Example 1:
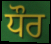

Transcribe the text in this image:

ਧੌਰ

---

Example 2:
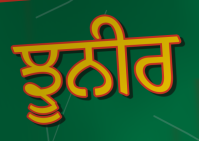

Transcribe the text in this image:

ਝੂਨੀਰ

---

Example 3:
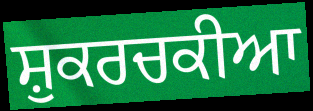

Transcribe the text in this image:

ਸ਼ੁਕਰਚਕੀਆ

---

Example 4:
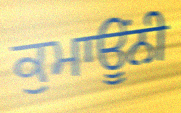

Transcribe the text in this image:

ਕੁਮਾਊਂਨੀ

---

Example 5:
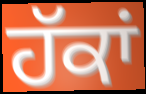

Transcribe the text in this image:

ਹੱਕਾਂ